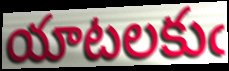
యాటలకుఁ